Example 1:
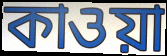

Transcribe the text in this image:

কাওয়া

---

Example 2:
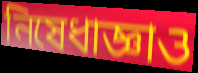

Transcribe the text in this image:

নিষেধাজ্ঞাও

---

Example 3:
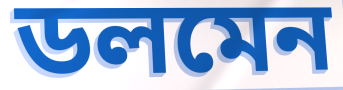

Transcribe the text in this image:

ডলমেন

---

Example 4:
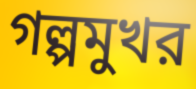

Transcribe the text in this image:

গল্পমুখর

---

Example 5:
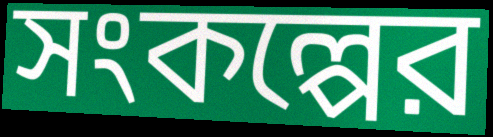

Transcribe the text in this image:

সংকল্পের